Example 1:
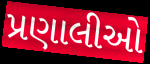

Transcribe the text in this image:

પ્રણાલીઓ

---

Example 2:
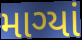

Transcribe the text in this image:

માગ્યાં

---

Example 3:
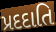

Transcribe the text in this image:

પ્રદદાતિ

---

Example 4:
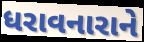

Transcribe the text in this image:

ધરાવનારાને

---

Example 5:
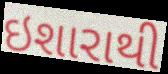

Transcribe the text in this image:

ઇશારાથી